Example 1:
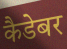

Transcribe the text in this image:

कैडेबर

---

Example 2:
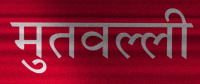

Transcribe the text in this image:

मुतवल्ली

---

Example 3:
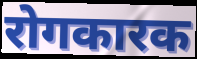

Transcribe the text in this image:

रोगकारक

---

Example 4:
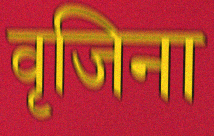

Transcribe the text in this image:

वृजिना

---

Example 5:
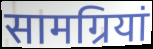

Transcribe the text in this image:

सामग्रियां